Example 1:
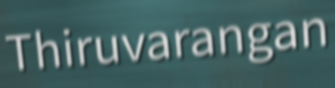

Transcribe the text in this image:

Thiruvarangan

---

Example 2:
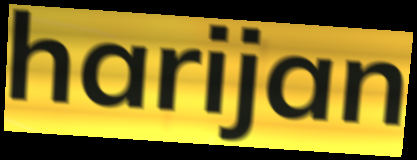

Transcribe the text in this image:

harijan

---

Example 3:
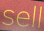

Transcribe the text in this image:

sell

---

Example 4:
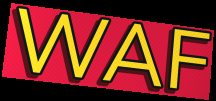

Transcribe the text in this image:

WAF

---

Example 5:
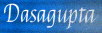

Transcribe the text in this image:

Dasagupta